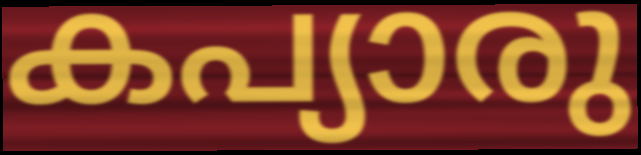
കപ്യാരു